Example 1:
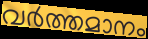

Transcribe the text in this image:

വർത്തമാനം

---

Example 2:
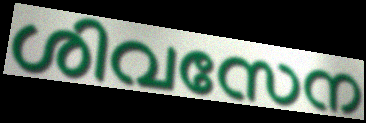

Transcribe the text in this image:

ശിവസേന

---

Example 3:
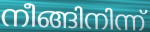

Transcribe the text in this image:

നീങ്ങിനിന്ന്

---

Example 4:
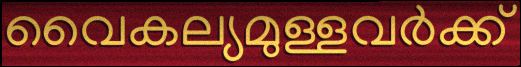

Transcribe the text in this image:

വൈകല്യമുള്ളവർക്ക്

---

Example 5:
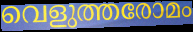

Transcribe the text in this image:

വെളുത്തരോമം